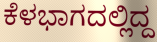
ಕೆಳಭಾಗದಲ್ಲಿದ್ದ